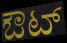
ಔಟ್